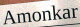
Amonkar